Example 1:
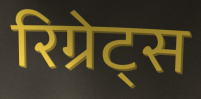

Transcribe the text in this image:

रिग्रेट्स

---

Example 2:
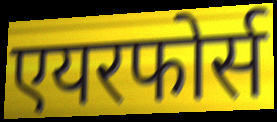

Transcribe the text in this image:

एयरफोर्स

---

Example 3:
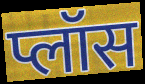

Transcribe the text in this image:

प्लॉस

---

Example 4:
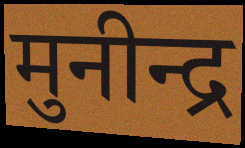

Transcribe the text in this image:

मुनीन्द्र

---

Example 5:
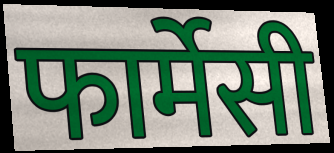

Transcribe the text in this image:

फार्मेसी